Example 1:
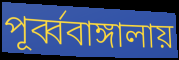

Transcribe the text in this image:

পূর্ব্ববাঙ্গালায়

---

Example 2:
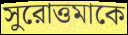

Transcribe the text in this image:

সুরোত্তমাকে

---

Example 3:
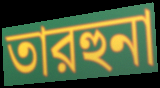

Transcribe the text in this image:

তারহুনা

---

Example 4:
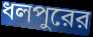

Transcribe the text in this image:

ধলপুরের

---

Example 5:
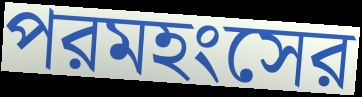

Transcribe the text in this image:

পরমহংসের